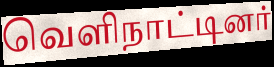
வெளிநாட்டினர்